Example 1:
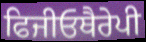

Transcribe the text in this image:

ਫਿਜੀਓਥੈਰੇਪੀ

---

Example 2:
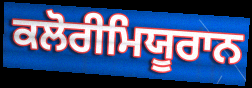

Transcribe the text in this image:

ਕਲੋਰੀਮਿਯੂਰਾਨ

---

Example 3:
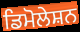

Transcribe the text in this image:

ਡਿਮੋਲੇਸ਼ਨ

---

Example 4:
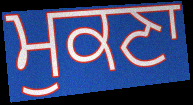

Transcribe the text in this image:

ਮੁਕਣਾ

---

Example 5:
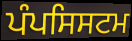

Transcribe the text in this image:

ਪੰਪਸਿਸਟਮ